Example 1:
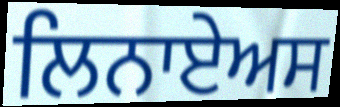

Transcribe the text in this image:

ਲਿਨਾਏਅਸ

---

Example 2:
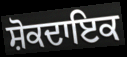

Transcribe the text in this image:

ਸ਼ੋਕਦਾਇਕ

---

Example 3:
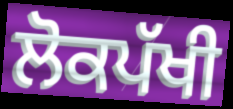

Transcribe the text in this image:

ਲੋਕਪੱਖੀ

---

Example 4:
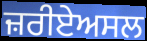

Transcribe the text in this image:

ਜ਼ਰੀਏਅਸਲ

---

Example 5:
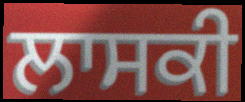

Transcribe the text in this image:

ਲਾਸਕੀ